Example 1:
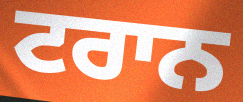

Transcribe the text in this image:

ਟਰਾਨ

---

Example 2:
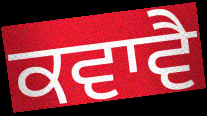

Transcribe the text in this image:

ਕਵਾਵੈ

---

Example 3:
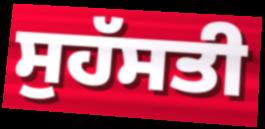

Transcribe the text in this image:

ਸੁਹੱਸਤੀ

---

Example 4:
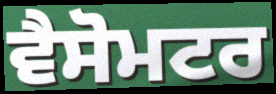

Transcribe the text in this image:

ਵੈਸੋਮਟਰ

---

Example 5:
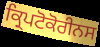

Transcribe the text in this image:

ਕ੍ਰਿਪਟੋਕੋਰੀਨਸ